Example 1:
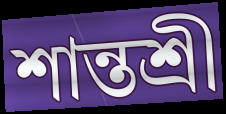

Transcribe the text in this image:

শান্তশ্রী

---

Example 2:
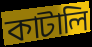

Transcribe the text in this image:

কাটালি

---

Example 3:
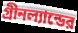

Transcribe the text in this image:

গ্রীনল্যান্ডের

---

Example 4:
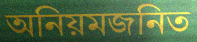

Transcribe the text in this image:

অনিয়মজনিত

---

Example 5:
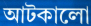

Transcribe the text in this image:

আটকালো